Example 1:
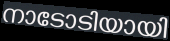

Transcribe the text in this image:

നാടോടിയായി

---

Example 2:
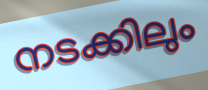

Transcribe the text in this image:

നടക്കിലും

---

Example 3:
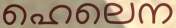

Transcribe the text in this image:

ഹെലെന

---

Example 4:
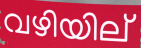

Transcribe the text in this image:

വഴിയില്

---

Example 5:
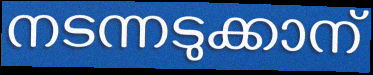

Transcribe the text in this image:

നടന്നടുക്കാന്